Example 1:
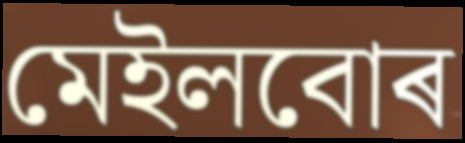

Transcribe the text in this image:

মেইলবোৰ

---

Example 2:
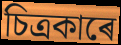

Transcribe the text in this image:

চিত্ৰকাৰে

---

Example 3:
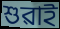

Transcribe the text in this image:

শুৱাই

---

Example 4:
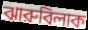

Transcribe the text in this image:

ঝাৰুবিলাক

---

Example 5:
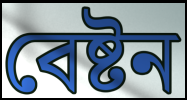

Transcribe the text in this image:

বেষ্টন